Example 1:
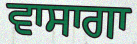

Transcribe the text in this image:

ਵਾਸਾਗਾ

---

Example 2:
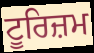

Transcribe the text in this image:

ਟੂਰਿਜ਼ਮ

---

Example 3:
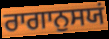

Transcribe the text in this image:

ਰਾਗਾਨੁਸਯਂ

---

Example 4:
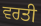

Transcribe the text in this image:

ਵਰਤੀ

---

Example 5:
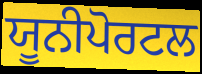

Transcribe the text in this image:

ਯੂਨੀਪੋਰਟਲ